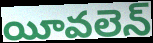
యీవలెన్